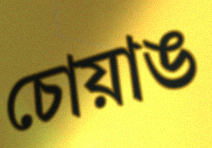
চোয়াঙ